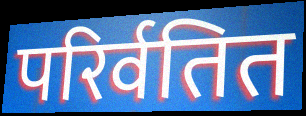
परिर्वतित